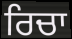
ਰਿਚਾ